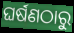
ଘର୍ଷଣଠାରୁ